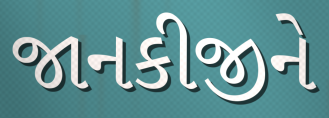
જાનકીજીને